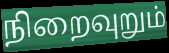
நிறைவுறும்